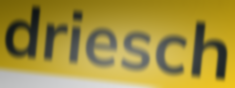
driesch